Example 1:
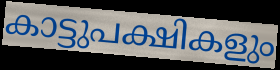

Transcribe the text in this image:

കാട്ടുപക്ഷികളും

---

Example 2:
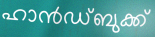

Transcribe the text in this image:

ഹാൻഡ്ബുക്ക്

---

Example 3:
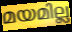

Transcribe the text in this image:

മയമില്ല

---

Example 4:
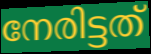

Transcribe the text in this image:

നേരിട്ടത്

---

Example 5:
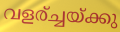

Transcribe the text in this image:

വളര്ച്ചയ്ക്കു